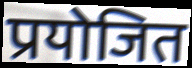
प्रयोजित